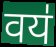
वय॑